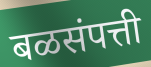
बळसंपत्ती